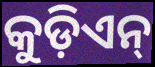
କୁଡ଼ିଏନ୍